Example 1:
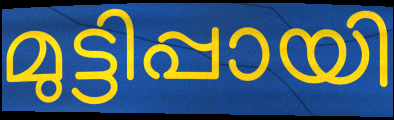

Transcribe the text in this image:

മുട്ടിപ്പായി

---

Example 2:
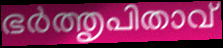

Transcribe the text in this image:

ഭർത്തൃപിതാവ്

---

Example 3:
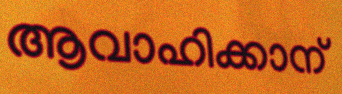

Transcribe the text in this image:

ആവാഹിക്കാന്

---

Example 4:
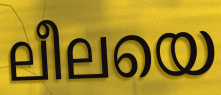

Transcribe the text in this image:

ലീലയെ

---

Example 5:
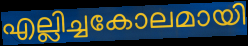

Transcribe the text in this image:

എല്ലിച്ചകോലമായി